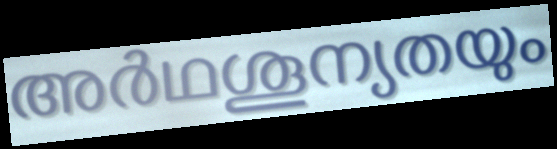
അർഥശൂന്യതയും